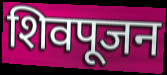
शिवपूजन